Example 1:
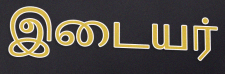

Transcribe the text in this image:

இடையர்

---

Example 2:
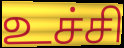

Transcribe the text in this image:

உச்சி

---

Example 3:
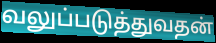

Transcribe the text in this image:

வலுப்படுத்துவதன்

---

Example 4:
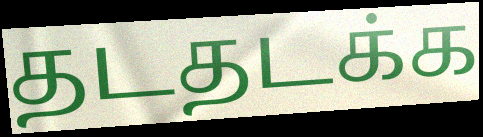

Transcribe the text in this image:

தடதடக்க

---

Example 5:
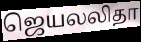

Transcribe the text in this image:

ஜெயலலிதா